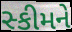
સ્કીમને